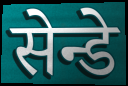
सेन्डे